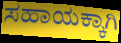
ಸಹಾಯಕ್ಕಾಗಿ